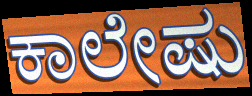
ಕಾಲೇಷು